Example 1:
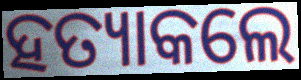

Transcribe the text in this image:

ହତ୍ୟାକଲେ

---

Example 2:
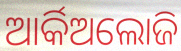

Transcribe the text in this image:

ଆର୍କିଅଲୋଜି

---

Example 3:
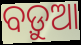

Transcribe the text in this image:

ବଡ଼ୁଆ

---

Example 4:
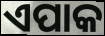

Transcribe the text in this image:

ଏପାକ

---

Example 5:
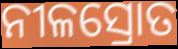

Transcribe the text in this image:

ନୀଳସ୍ରୋତ